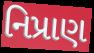
નિપ્રાણ